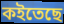
কইতেছে